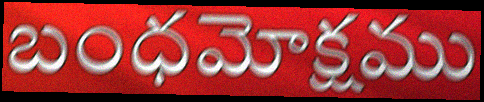
బంధమోక్షము